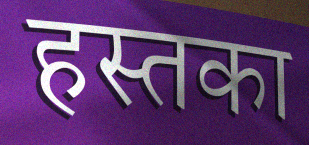
हस्तका